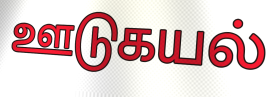
ஊடுகயல்